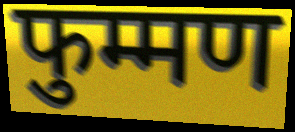
फुम्मण